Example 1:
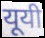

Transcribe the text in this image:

यूयी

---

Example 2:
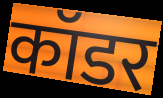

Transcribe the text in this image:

कॉडर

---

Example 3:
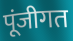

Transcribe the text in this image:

पूंजीगत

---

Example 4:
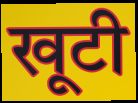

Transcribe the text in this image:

खूटी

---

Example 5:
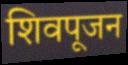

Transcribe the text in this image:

शिवपूजन